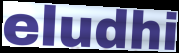
eludhi